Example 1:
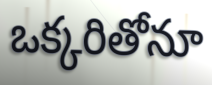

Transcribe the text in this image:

ఒక్కరితోనూ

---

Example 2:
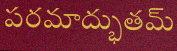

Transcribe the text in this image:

పరమాద్భుతమ్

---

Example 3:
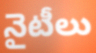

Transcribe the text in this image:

నైటీలు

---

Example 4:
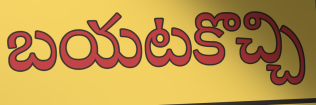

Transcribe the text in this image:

బయటకొచ్చి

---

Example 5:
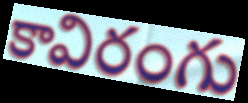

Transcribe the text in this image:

కావిరంగు